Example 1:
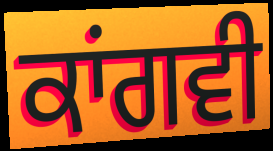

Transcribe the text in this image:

ਕਾਂਗਵੀ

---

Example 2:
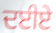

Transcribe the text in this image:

ਦਈਏ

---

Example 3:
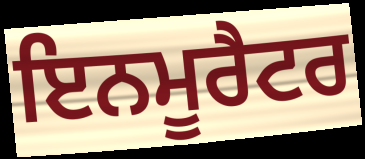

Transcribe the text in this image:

ਇਨਮੂਰੈਟਰ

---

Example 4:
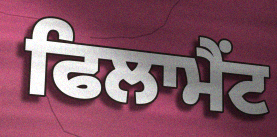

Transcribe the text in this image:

ਫਿਲਾਮੈਂਟ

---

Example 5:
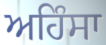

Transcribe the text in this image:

ਅਹਿੰਸਾ